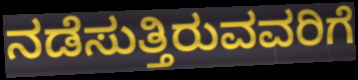
ನಡೆಸುತ್ತಿರುವವರಿಗೆ